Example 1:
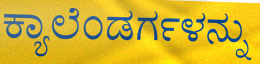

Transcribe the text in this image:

ಕ್ಯಾಲೆಂಡರ್ಗಳನ್ನು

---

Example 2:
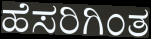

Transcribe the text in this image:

ಹೆಸರಿಗಿಂತ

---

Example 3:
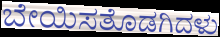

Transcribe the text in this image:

ಬೇಯಿಸತೊಡಗಿದಳು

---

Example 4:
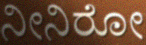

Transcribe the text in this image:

ನೀನಿರೋ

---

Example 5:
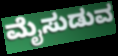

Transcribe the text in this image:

ಮೈಸುಡುವ